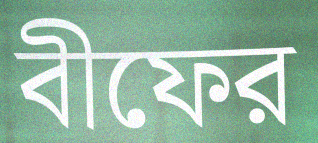
বীফের